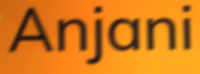
Anjani